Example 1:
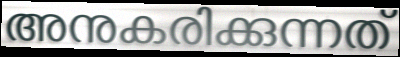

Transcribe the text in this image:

അനുകരിക്കുന്നത്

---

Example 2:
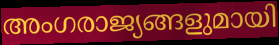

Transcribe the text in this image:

അംഗരാജ്യങ്ങളുമായി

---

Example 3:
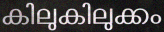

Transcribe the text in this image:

കിലുകിലുക്കം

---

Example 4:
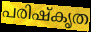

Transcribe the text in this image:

പരിഷ്കൃത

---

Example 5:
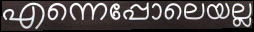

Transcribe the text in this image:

എന്നെപ്പോലെയല്ല